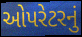
ઓપરેટરનું